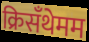
क्रिसँथेमम